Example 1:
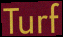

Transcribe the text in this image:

Turf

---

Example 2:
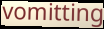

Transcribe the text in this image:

vomitting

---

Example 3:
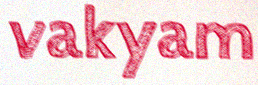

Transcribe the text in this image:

vakyam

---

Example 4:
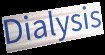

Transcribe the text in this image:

Dialysis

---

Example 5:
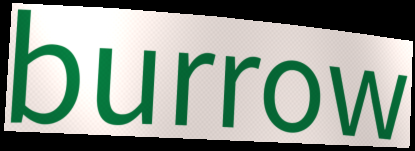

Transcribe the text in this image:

burrow